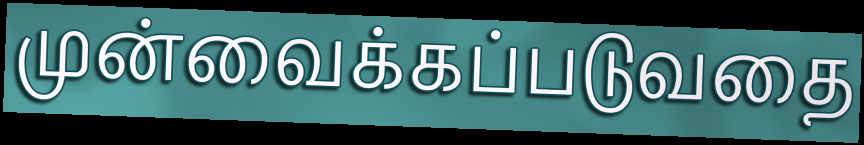
முன்வைக்கப்படுவதை